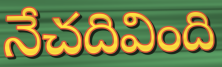
నేచదివింది